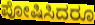
ಪೋಷಿಸಿದರೂ